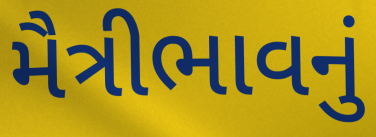
મૈત્રીભાવનું